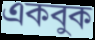
একবুক